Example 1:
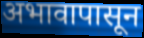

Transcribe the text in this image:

अभावापासून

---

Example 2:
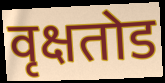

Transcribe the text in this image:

वृक्षतोड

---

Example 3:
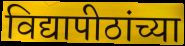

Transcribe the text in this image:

विद्यापीठांच्या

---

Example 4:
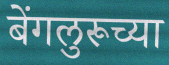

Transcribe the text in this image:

बेंगलुरूच्या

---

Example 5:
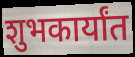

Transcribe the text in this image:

शुभकार्यांत